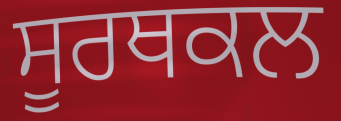
ਸੂਰਥਕਲ